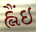
હ્લૈંઇ